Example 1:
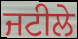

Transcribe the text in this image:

ਜਟੀਲੇ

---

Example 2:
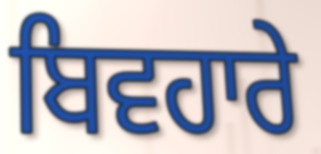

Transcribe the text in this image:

ਬਿਵਹਾਰੇ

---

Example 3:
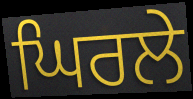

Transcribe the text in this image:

ਘਿਰਲੇ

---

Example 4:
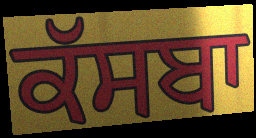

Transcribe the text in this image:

ਕੱਸਬਾ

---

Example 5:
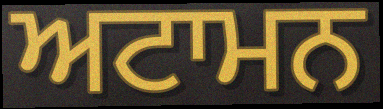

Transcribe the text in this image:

ਅਟਾਮਨ